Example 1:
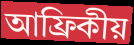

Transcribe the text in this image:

আফ্ৰিকীয়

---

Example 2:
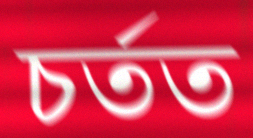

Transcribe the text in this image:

চৰ্তত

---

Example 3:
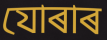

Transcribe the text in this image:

যোৰাৰ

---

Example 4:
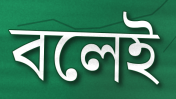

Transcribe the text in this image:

বলেই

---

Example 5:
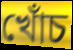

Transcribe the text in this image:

খোঁচ